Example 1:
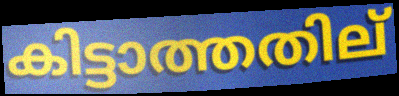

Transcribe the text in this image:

കിട്ടാത്തതില്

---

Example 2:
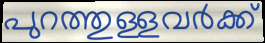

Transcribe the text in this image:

പുറത്തുള്ളവർക്ക്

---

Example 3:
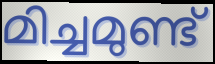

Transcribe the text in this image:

മിച്ചമുണ്ട്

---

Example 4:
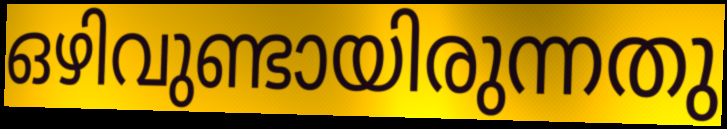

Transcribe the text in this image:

ഒഴിവുണ്ടായിരുന്നതു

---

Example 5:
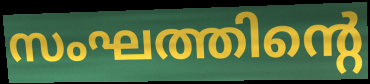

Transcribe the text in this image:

സംഘത്തിന്റെ